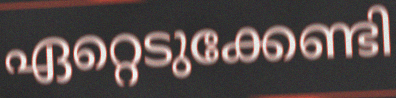
ഏറ്റെടുക്കേണ്ടി